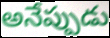
అనేప్పుడు